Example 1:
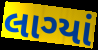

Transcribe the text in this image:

લાગ્યાં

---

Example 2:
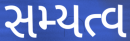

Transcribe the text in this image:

સમ્યત્વ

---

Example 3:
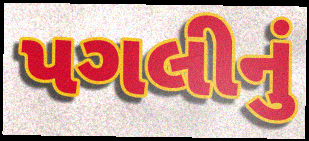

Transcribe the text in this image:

પગલીનું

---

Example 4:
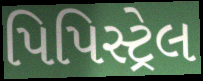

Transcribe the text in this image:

પિપિસ્ટ્રેલ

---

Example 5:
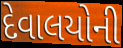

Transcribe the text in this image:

દેવાલયોની